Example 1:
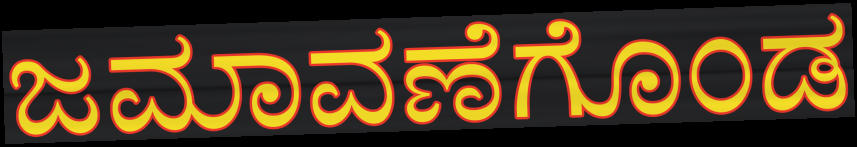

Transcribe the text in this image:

ಜಮಾವಣೆಗೊಂಡ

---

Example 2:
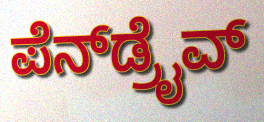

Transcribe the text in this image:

ಪೆನ್‌ಡ್ರೈವ್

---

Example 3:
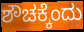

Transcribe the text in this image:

ಶೌಚಕ್ಕೆಂದು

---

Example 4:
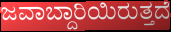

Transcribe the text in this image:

ಜವಾಬ್ದಾರಿಯಿರುತ್ತದೆ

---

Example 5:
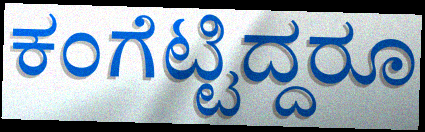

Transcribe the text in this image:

ಕಂಗೆಟ್ಟಿದ್ದರೂ